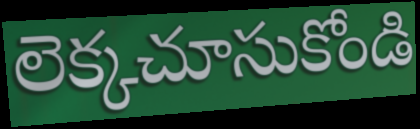
లెక్కచూసుకోండి